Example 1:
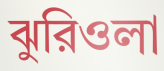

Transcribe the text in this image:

ঝুরিওলা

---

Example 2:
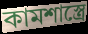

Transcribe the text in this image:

কামশাস্ত্রে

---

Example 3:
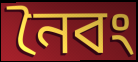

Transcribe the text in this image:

নৈবং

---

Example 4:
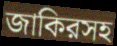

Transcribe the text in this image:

জাকিরসহ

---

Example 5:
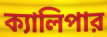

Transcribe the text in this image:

ক্যালিপার